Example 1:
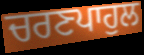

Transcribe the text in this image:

ਚਰਣਪਾਹੁਲ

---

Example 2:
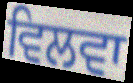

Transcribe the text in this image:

ਵਿਲਵਾ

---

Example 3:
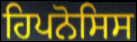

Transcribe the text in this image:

ਹਿਪਨੋਸਿਸ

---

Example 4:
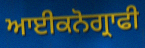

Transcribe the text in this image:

ਆਈਕਨੋਗ੍ਰਾਫੀ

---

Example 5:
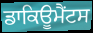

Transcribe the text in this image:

ਡਾਕਿਊਮੈਂਟਸ